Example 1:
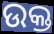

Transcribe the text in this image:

ଉକ୍ତ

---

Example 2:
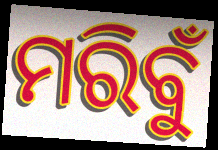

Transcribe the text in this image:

ମରିବୁଁ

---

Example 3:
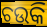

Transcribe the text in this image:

ଚଉକି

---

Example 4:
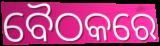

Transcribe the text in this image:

ବୈଠକରେ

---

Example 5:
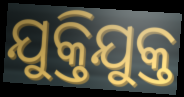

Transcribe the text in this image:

ଯୁକ୍ତିଯୁକ୍ତ